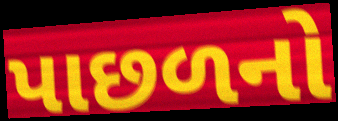
પાછળનો